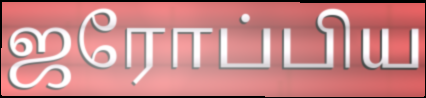
ஜரோப்பிய